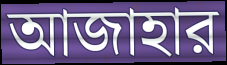
আজাহার